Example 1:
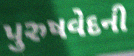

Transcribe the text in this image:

પુરુષવેદની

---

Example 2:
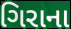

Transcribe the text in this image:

ગિરાના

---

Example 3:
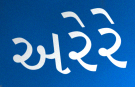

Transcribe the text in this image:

અરેરે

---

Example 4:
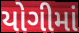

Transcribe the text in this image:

યોગીમાં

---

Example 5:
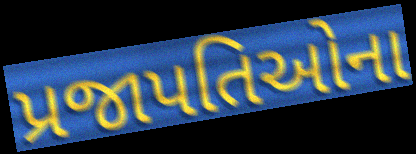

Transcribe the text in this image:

પ્રજાપતિઓના